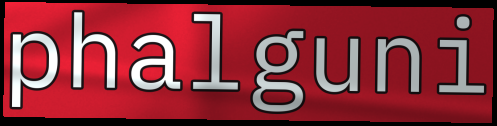
phalguni